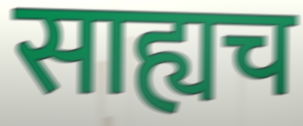
साह्यच